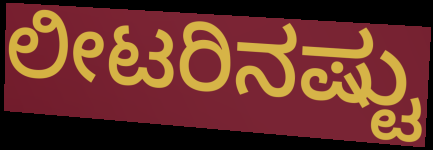
ಲೀಟರಿನಷ್ಟು